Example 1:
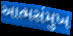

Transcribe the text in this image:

આત્મસંમુખ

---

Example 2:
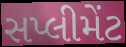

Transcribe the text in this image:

સપ્લીમેંટ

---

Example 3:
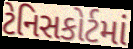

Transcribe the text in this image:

ટેનિસકોર્ટમાં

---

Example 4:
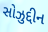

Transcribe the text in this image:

સોઝુદ્દીન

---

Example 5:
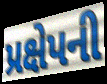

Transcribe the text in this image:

પ્રક્ષેપની